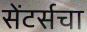
सेंटर्सचा